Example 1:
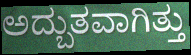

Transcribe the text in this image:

ಅದ್ಬುತವಾಗಿತ್ತು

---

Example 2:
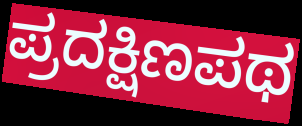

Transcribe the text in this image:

ಪ್ರದಕ್ಷಿಣಪಥ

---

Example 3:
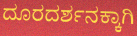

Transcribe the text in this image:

ದೂರದರ್ಶನಕ್ಕಾಗಿ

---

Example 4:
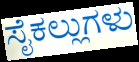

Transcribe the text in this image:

ಸೈಕಲ್ಲುಗಳು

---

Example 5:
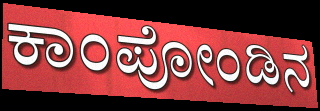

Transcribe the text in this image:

ಕಾಂಪೋಂಡಿನ